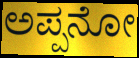
ಅಪ್ಪನೋ